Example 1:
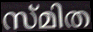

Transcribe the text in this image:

സ്മിത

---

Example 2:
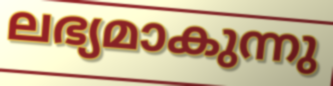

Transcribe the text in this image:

ലഭ്യമാകുന്നു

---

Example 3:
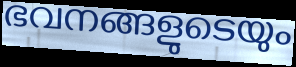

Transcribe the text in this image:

ഭവനങ്ങളുടെയും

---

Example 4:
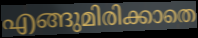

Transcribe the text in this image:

എങ്ങുമിരിക്കാതെ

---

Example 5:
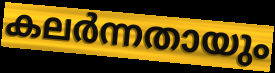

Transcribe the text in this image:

കലർന്നതായും